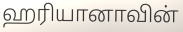
ஹரியானாவின்